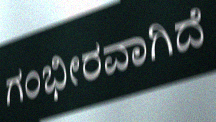
ಗಂಭೀರವಾಗಿದೆ